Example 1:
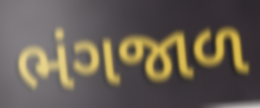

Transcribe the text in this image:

ભંગજાળ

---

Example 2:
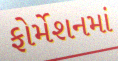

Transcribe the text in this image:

ફોર્મેશનમાં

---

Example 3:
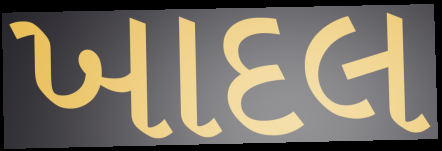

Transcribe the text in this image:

ખાદલ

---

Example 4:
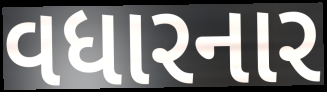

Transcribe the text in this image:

વધારનાર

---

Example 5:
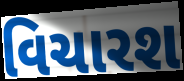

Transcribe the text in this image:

વિચારશ